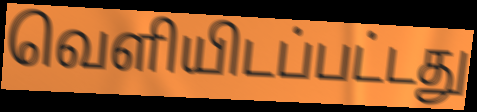
வெளியிடப்பட்டது